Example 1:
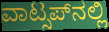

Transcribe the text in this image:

ವಾಟ್ಸಪ್‍ನಲ್ಲಿ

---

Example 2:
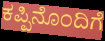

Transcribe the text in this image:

ಕಪ್ಪಿನೊಂದಿಗೆ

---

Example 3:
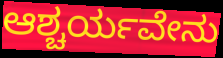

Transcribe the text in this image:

ಆಶ್ಚರ್ಯವೇನು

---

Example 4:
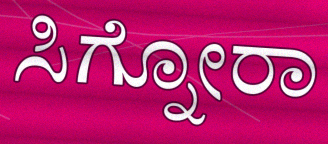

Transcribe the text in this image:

ಸಿಗ್ನೋರಾ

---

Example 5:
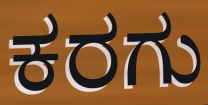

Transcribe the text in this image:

ಕರಗು